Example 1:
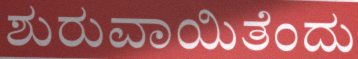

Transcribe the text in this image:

ಶುರುವಾಯಿತೆಂದು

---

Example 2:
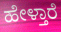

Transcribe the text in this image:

ಹೇಳ್ತಾರೆ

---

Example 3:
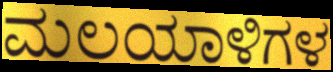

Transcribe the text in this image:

ಮಲಯಾಳಿಗಳ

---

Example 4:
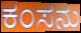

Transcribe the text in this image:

ಕಂಸನು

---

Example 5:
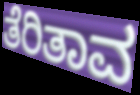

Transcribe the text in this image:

ತೆರಿತಾವ